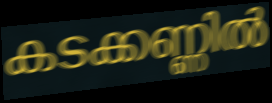
കടക്കണ്ണിൽ